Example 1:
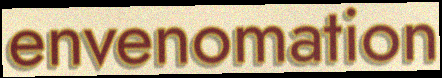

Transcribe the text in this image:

envenomation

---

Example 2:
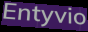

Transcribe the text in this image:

Entyvio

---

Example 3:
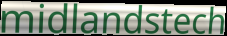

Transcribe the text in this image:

midlandstech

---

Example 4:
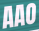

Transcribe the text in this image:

AAO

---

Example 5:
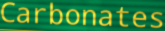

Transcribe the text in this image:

Carbonates